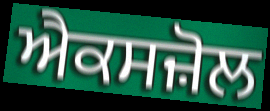
ਐਕਸਜ਼ੋਲ